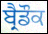
ਬ੍ਰੈਡੌਕ